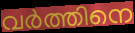
വർത്തിനെ